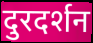
दुरदर्शन